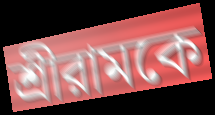
শ্রীরামকে